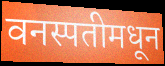
वनस्पतीमधून